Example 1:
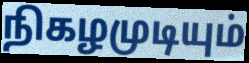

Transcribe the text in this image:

நிகழமுடியும்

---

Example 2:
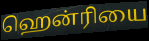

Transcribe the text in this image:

ஹென்ரியை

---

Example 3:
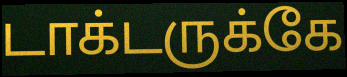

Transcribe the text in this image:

டாக்டருக்கே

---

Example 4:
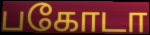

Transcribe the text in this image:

பகோடா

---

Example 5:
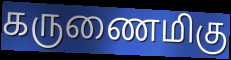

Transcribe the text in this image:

கருணைமிகு